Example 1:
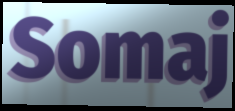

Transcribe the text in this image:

Somaj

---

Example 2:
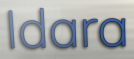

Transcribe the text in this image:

Idara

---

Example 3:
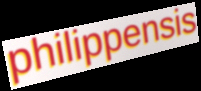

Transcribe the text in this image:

philippensis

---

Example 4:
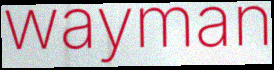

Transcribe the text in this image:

wayman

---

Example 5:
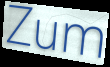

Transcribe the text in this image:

Zum